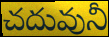
చదువునీ